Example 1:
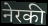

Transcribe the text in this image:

नेरकी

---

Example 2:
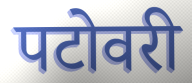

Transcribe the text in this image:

पटोवरी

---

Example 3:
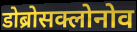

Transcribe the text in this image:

डोब्रोसक्लोनोव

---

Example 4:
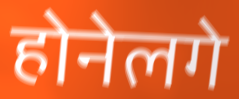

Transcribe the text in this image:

होनेलगे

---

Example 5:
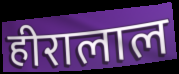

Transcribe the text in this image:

हीरालाल